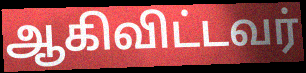
ஆகிவிட்டவர்